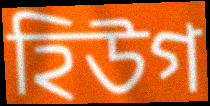
হিউগ